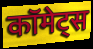
कॉमेट्स